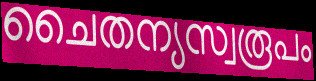
ചൈതന്യസ്വരൂപം